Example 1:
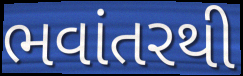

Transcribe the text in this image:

ભવાંતરથી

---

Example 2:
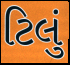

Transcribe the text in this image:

ટિલું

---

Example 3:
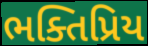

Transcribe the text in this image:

ભક્તિપ્રિય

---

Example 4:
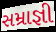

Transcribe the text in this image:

સમ્રાજ્ઞી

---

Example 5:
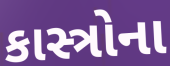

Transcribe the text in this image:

કાસ્ત્રોના